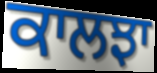
ਕਾਲਝਾ